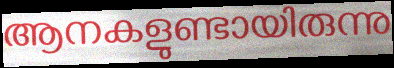
ആനകളുണ്ടായിരുന്നു